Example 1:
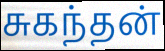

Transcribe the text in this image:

சுகந்தன்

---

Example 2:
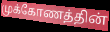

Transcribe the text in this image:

முக்கோணத்தின்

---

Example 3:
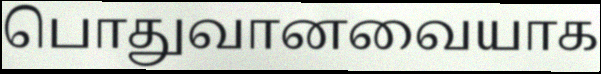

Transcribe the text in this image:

பொதுவானவையாக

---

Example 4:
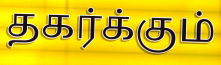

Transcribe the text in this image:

தகர்க்கும்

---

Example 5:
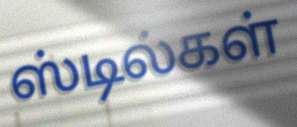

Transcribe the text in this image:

ஸ்டில்கள்